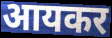
आयकर